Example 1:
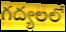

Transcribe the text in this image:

గద్యలలో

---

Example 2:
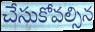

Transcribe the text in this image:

చేసుకోవల్సిన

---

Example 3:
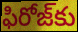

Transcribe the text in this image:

ఫిరోజ్‌కు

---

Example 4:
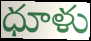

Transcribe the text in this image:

ధూళు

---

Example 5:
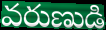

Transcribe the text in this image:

వరుణుడి